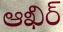
ఆఖిర్